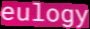
eulogy